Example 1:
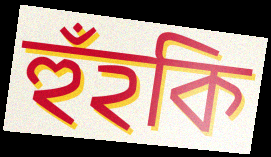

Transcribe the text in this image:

হুঁহকি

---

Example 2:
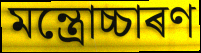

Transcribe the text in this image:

মন্ত্ৰোচ্চাৰণ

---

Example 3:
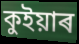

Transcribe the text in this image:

কুইয়াৰ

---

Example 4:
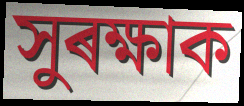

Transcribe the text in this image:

সুৰক্ষাক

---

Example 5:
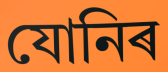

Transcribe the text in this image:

যোনিৰ